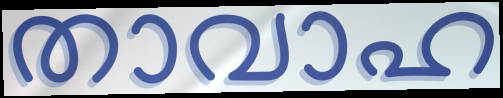
താവാഹ